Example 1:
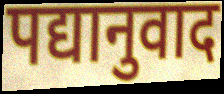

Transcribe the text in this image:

पद्यानुवाद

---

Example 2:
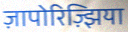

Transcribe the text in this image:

ज़ापोरिज़्झिया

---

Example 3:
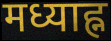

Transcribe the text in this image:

मध्याह्न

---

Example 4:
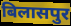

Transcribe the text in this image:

बिलासपुर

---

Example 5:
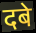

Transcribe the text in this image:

दबे